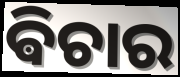
ଵିଚାର